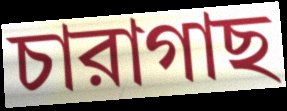
চারাগাছ